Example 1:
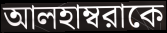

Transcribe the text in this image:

আলহাম্বরাকে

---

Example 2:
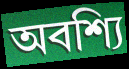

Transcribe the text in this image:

অবশ্যি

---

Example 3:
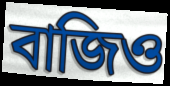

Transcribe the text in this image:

বাজিও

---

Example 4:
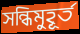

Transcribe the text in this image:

সন্ধিমুহূর্ত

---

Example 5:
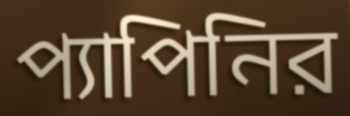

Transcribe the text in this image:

প্যাপিনির